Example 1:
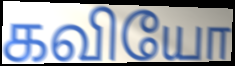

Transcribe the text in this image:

கவியோ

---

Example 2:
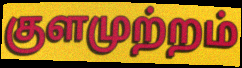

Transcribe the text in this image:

குளமுற்றம்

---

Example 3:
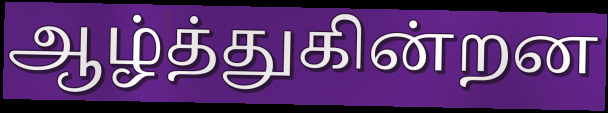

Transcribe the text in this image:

ஆழ்த்துகின்றன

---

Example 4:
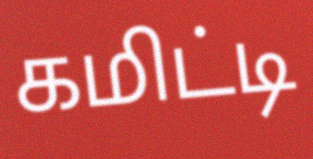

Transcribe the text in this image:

கமிட்டி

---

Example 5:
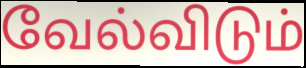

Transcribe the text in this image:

வேல்விடும்